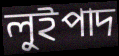
লুইপাদ